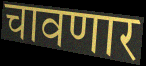
चावणार